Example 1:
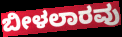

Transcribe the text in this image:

ಬೀಳಲಾರವು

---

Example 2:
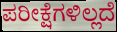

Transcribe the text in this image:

ಪರೀಕ್ಷೆಗಳಿಲ್ಲದೆ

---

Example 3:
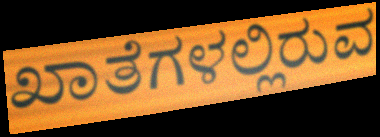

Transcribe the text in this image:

ಖಾತೆಗಳಲ್ಲಿರುವ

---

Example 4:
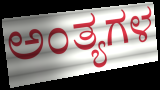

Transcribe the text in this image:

ಅಂತ್ಯಗಳ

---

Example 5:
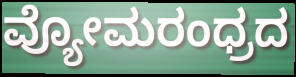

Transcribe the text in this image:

ವ್ಯೋಮರಂಧ್ರದ